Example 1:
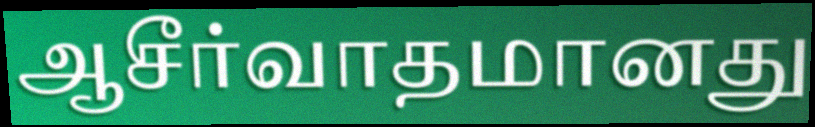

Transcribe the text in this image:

ஆசீர்வாதமானது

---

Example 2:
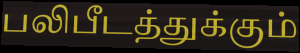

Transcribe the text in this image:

பலிபீடத்துக்கும்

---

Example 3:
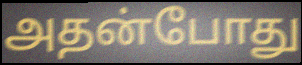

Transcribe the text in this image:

அதன்போது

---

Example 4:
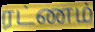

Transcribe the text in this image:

ரட்ணம்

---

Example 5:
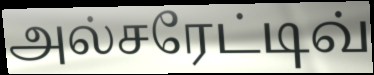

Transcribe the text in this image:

அல்சரேட்டிவ்